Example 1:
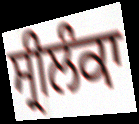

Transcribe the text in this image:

ਸ੍ਰੀਲੰਕਾ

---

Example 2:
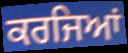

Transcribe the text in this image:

ਕਰਜਿਆਂ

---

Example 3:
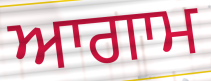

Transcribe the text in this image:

ਆਗਾਮ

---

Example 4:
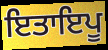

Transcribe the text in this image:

ਇਤਾਇਪੂ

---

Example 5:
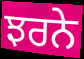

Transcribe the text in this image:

ਝਰਨੇ